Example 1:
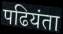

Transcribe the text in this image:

पढियंता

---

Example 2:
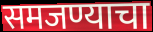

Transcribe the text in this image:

समजण्याचा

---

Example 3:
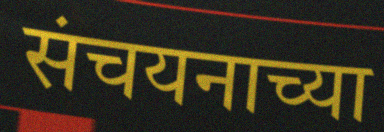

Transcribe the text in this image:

संचयनाच्या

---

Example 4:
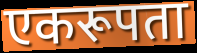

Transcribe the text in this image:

एकरूपता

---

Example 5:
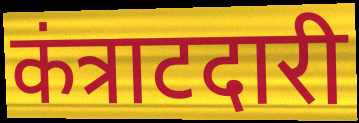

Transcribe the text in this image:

कंत्राटदारी